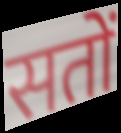
सतों